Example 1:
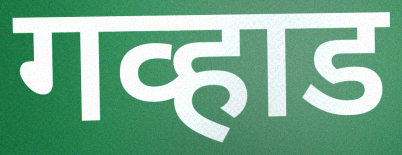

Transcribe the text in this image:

गव्हाड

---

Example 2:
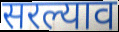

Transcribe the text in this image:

सरल्याव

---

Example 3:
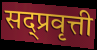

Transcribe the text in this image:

सद्प्रवृत्ती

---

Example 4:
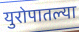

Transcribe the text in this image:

युरोपातल्या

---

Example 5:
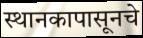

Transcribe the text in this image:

स्थानकापासूनचे